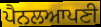
ਪੈਨਲਆਪਣੀ